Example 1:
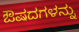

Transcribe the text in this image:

ಔಷದಗಳನ್ನು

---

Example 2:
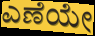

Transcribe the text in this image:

ಎಣೆಯೇ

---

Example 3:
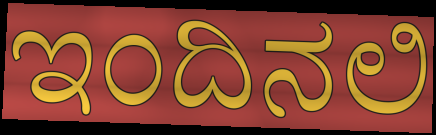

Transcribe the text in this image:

ಇಂದಿನಲಿ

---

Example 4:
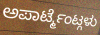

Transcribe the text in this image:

ಅಪಾರ್ಟ್ಮೆಂಟ್ಗಳು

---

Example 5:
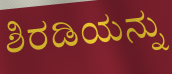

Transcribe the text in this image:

ಶಿರಡಿಯನ್ನು